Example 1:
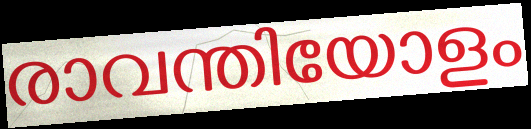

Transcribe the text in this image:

രാവന്തിയോളം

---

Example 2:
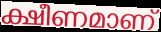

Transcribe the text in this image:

ക്ഷീണമാണ്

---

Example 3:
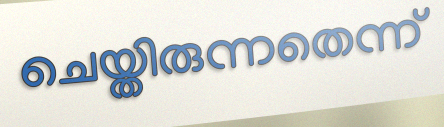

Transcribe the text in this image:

ചെയ്തിരുന്നതെന്ന്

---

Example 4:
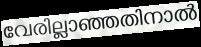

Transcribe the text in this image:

വേരില്ലാഞ്ഞതിനാൽ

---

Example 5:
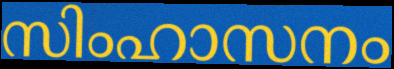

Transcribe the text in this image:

സിംഹാസനം